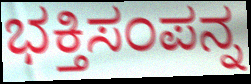
ಭಕ್ತಿಸಂಪನ್ನ